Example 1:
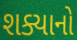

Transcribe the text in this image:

શક્યાનો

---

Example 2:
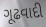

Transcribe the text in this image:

ગૂઢવાદી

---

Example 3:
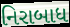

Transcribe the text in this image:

નિરાબાધ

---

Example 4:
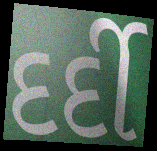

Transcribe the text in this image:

દર્દી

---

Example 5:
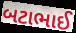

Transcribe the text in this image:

બટાભાઈ